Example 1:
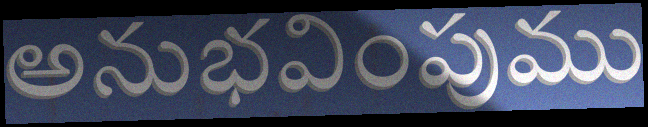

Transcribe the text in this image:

అనుభవింపుము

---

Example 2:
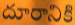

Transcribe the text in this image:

దూరానికి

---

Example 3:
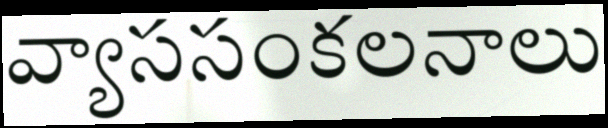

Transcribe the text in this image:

వ్యాససంకలనాలు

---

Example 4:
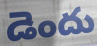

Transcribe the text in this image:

డెందు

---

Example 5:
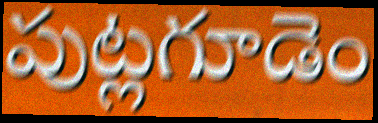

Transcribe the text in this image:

పుట్లగూడెం